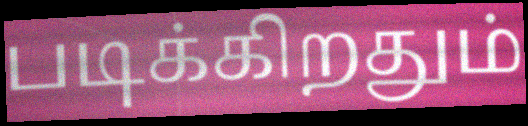
படிக்கிறதும்